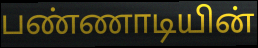
பண்ணாடியின்